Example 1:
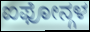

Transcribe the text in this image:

ಐಫೋನ್ಗಳ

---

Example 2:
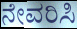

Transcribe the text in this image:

ನೇವರಿಸಿ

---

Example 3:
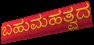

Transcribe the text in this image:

ಬಹುಮಹತ್ವದ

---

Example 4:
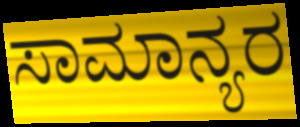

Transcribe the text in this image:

ಸಾಮಾನ್ಯರ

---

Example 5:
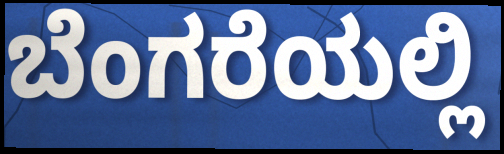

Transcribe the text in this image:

ಬೆಂಗರೆಯಲ್ಲಿ